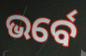
ଭର୍ବେ